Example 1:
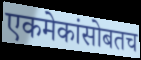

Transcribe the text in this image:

एकमेकांसोबतच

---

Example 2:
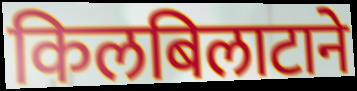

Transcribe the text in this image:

किलबिलाटाने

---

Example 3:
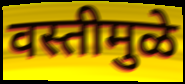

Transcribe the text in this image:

वस्तीमुळे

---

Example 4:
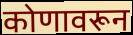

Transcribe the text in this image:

कोणावरून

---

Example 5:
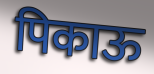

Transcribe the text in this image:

पिकाऊ